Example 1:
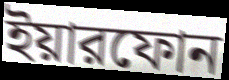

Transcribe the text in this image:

ইয়ারফোন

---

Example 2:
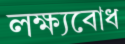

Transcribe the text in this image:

লক্ষ্যবোধ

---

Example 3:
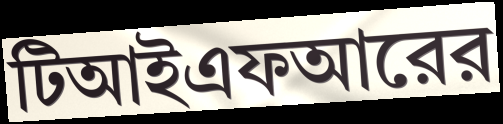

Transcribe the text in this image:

টিআইএফআরের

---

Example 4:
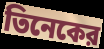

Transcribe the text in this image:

তিনেকের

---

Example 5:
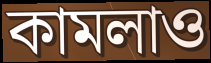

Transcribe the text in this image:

কামলাও